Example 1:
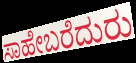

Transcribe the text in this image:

ಸಾಹೇಬರೆದುರು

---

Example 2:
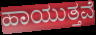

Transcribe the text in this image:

ಹಾಯುತ್ತವೆ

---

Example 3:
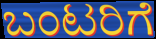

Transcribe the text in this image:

ಬಂಟರಿಗೆ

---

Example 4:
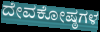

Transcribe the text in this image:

ದೇವಕೋಷ್ಠಗಳ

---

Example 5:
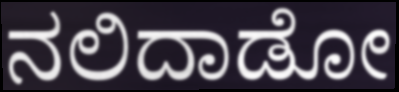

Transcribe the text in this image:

ನಲಿದಾಡೋ